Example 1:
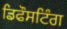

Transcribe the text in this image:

ਡਿਫੌਸਟਿੰਗ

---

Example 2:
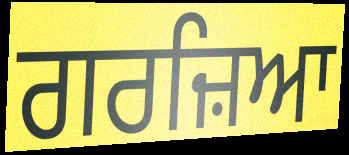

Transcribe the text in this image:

ਗਰਜ਼ਿਆ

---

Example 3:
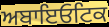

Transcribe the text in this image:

ਅਬਾਇਓਟਿਕ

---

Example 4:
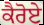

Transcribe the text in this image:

ਕੈਰੋਏ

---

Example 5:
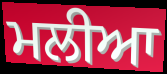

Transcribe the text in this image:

ਮਲੀਆ